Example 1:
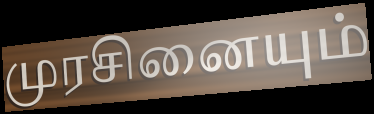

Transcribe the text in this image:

முரசினையும்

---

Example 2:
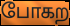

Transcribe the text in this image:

போகற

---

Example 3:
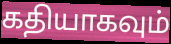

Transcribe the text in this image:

கதியாகவும்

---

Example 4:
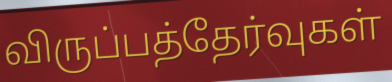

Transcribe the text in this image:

விருப்பத்தேர்வுகள்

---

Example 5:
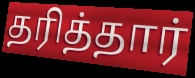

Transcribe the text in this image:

தரித்தார்